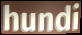
hundi